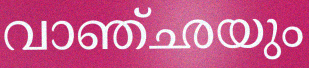
വാഞ്ഛയും